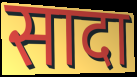
सादा